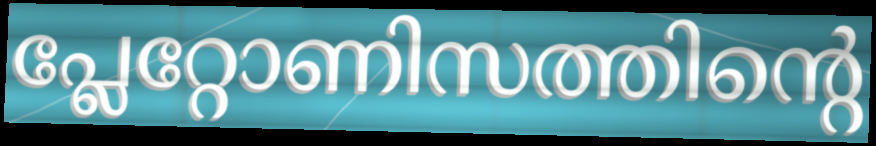
പ്ലേറ്റോണിസത്തിന്റെ